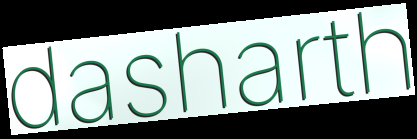
dasharth